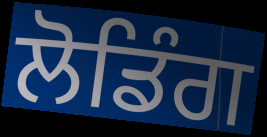
ਲੋਡਿੰਗ